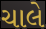
ચાલે